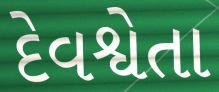
દેવશ્વેતા